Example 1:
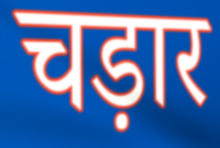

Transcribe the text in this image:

चड़ार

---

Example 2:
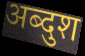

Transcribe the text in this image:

अब्दुश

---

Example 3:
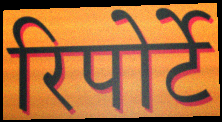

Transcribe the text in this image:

रिपोर्टे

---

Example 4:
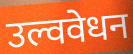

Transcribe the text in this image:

उल्ववेधन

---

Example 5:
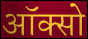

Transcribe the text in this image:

ऑक्सो